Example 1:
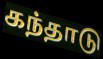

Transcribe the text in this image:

கந்தாடு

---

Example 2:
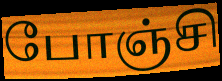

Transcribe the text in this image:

போஞ்சி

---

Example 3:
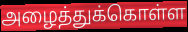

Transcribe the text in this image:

அழைத்துக்கொள்ள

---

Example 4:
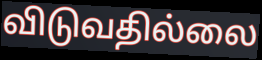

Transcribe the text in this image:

விடுவதில்லை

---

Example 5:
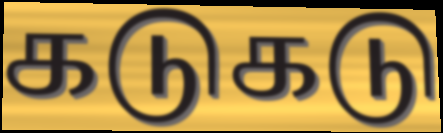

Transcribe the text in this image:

கடுகடு